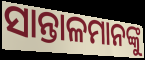
ସାନ୍ତାଳମାନଙ୍କୁ